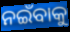
ନଇଁବାକୁ